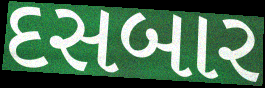
દસબાર